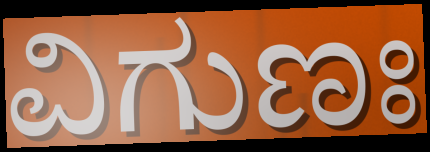
ವಿಗುಣಃ